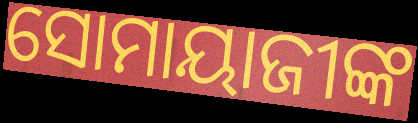
ସୋମାୟାଜୀଙ୍କ